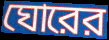
ঘোরের